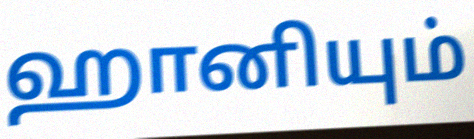
ஹானியும்